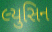
લ્યુસિન